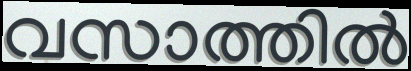
വസാത്തിൽ